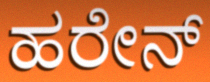
ಹರೇನ್